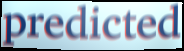
predicted